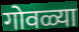
गोवळ्या